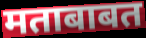
मताबाबत